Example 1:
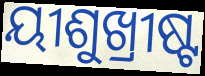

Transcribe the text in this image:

ୟୀଶୁଖ୍ରୀଷ୍ଟ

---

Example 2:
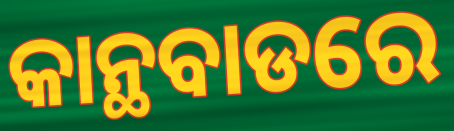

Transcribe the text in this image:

କାନ୍ଥବାଡରେ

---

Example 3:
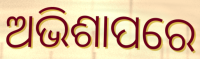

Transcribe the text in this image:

ଅଭିଶାପରେ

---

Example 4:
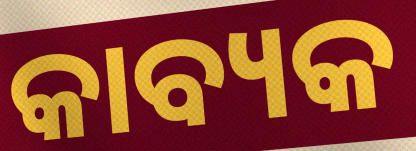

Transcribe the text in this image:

କାବ୍ୟକ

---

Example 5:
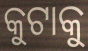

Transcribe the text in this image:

କୁଟାକୁ